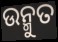
ଉନ୍ମୁତ